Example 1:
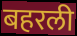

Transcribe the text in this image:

बहरली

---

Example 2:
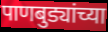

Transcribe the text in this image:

पाणबुड्यांच्या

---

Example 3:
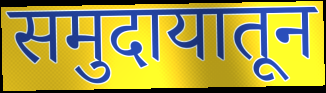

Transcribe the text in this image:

समुदायातून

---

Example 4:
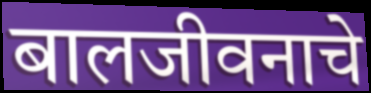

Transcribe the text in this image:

बालजीवनाचे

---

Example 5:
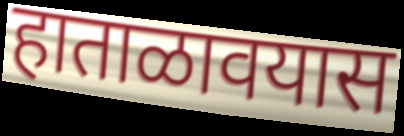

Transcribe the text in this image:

हाताळावयास